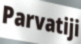
Parvatiji